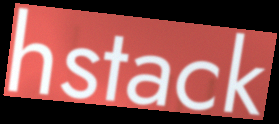
hstack